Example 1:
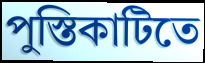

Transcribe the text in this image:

পুস্তিকাটিতে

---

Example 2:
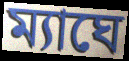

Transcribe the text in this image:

ম্যাঘে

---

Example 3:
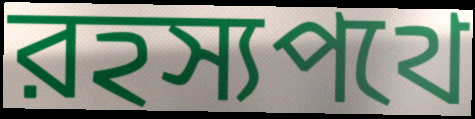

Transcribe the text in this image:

রহস্যপথে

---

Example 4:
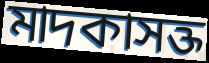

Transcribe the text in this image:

মাদকাসক্ত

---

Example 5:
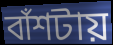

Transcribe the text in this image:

বাঁশটায়